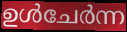
ഉൾചേർന്ന